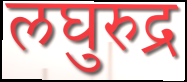
लघुरुद्र